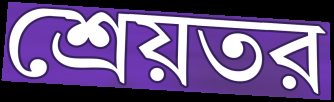
শ্রেয়তর